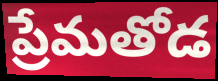
ప్రేమతోడ